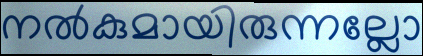
നൽകുമായിരുന്നല്ലോ